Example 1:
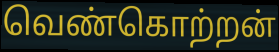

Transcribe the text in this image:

வெண்கொற்றன்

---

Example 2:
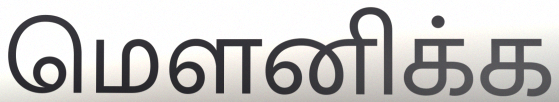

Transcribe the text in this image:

மெளனிக்க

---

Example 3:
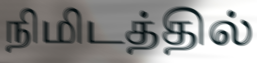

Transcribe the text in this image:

நிமிடத்தில்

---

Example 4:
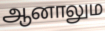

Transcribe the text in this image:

ஆனாலும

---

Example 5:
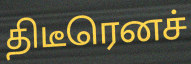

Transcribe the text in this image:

திடீரெனச்